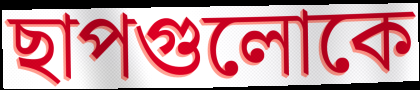
ছাপগুলোকে